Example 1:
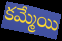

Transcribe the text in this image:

కమ్మేయి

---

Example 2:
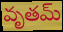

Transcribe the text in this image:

వృతమ్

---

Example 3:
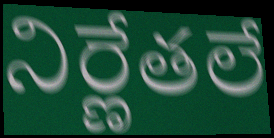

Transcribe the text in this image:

నిర్ణేతలే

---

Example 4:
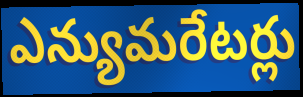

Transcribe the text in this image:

ఎన్యుమరేటర్లు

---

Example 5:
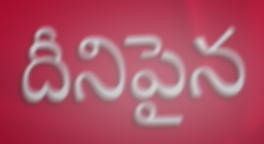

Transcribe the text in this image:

దీనిపైన